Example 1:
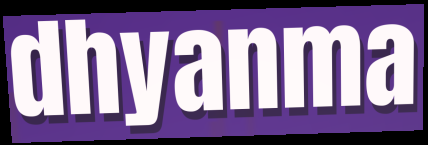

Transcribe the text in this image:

dhyanma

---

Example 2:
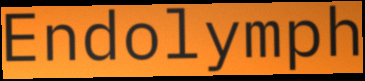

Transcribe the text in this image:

Endolymph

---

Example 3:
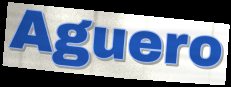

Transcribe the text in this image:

Aguero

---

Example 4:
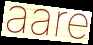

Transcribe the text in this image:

aare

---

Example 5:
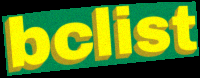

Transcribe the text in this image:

bclist